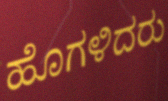
ಹೊಗಳಿದರು